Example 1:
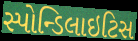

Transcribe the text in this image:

સ્પોન્ડિલાઇટિસ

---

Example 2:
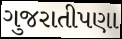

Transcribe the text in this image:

ગુજરાતીપણા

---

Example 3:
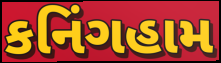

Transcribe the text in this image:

કનિંગહામ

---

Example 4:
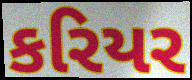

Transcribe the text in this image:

કરિયર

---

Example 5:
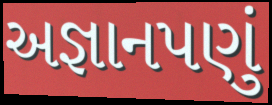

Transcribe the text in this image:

અજ્ઞાનપણું